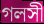
গলসী